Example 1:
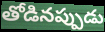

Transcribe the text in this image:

తోడినప్పుడు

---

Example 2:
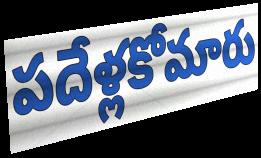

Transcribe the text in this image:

పదేళ్లకోమారు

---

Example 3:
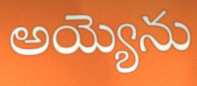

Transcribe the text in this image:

అయ్యెను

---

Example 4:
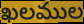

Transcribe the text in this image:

ఖలముల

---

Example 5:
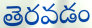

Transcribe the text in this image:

తెరవడం